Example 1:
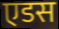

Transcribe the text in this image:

एडस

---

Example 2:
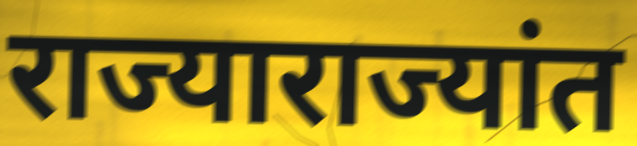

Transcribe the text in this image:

राज्याराज्यांत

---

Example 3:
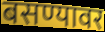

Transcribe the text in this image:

बसण्यावर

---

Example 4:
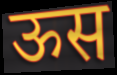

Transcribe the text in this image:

ऊस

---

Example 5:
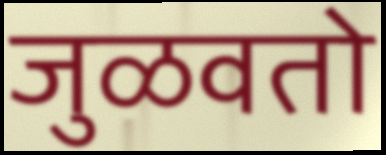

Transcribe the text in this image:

जुळवतो